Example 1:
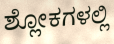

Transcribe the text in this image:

ಶ್ಲೋಕಗಳಲ್ಲಿ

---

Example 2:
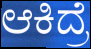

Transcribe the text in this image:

ಆಕಿದ್ರೆ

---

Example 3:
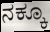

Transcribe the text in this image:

ನಕ್ಕೂ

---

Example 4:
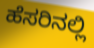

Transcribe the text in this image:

ಹೆಸರಿನಲ್ಲಿ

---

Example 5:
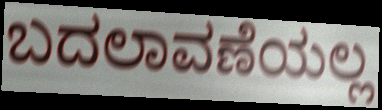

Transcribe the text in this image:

ಬದಲಾವಣೆಯಲ್ಲ